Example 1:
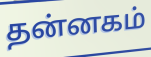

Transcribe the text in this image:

தன்னகம்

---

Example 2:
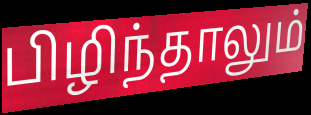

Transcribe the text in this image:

பிழிந்தாலும்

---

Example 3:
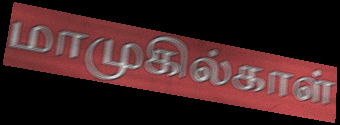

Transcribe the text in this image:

மாமுகில்காள்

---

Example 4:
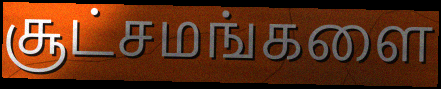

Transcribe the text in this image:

சூட்சமங்களை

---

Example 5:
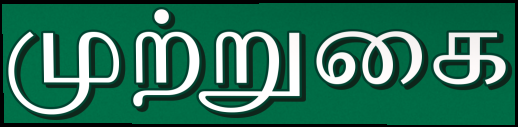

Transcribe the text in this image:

முற்றுகை